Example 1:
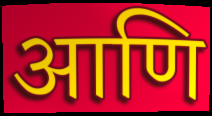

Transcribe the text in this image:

आणि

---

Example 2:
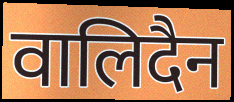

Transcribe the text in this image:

वालिदैन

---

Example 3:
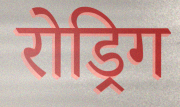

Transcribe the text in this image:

रोड्रिग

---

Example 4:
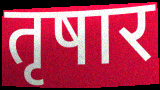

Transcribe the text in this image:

तृषार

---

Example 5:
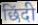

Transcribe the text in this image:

छिंदी